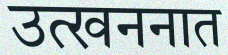
उत्खननात